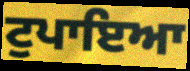
ਟੁਪਾਇਆ